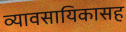
व्यावसायिकासह